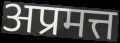
अप्रमत्त